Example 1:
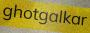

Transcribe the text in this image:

ghotgalkar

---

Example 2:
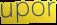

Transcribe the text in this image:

upor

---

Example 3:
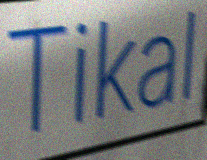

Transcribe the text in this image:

Tikal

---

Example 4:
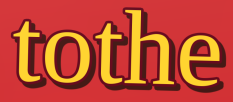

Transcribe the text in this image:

tothe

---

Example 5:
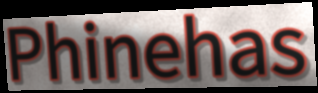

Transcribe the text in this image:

Phinehas